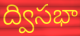
ద్విసభా